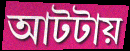
আটটায়